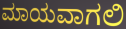
ಮಾಯವಾಗಲಿ